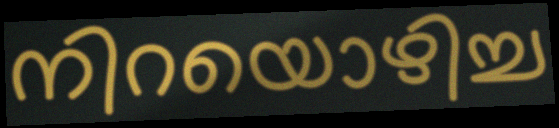
നിറയൊഴിച്ച